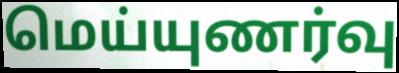
மெய்யுணர்வு